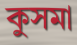
কুসমা